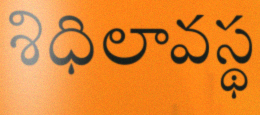
శిధిలావస్థ